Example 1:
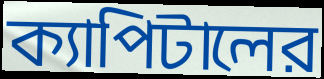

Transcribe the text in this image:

ক্যাপিটালের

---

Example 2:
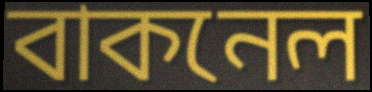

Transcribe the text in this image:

বাকনেল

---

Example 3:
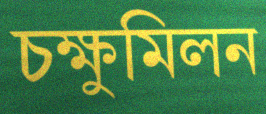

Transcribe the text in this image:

চক্ষুমিলন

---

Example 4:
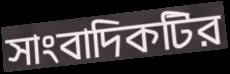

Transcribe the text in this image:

সাংবাদিকটির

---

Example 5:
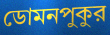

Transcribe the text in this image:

ডোমনপুকুর